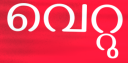
വെറ്റു